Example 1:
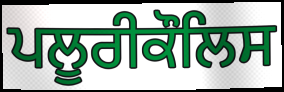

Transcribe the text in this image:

ਪਲੂਰੀਕੌਲਿਸ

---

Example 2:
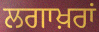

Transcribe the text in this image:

ਲਗਾਖ਼ਰਾਂ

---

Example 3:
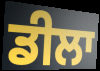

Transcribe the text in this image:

ਡੀਲਾ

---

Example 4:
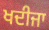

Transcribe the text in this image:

ਖਦੀਜਾ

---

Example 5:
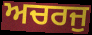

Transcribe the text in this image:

ਅਚਰਜੁ